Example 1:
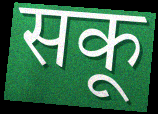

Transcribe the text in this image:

सकू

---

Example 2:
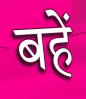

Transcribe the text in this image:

बहें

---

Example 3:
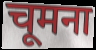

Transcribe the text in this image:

चूमना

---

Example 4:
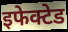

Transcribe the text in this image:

इफेक्टेड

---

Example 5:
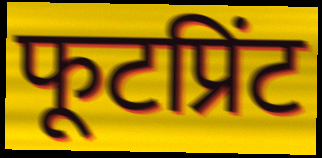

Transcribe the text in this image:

फूटप्रिंट